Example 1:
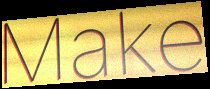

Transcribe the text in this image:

Make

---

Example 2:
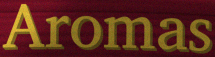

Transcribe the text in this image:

Aromas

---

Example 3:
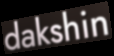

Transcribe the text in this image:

dakshin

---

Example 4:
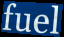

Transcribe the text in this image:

fuel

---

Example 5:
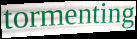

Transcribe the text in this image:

tormenting